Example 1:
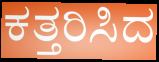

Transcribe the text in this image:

ಕತ್ತರಿಸಿದ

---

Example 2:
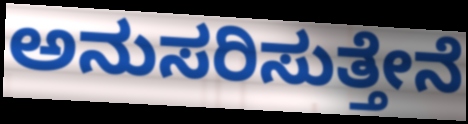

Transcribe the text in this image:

ಅನುಸರಿಸುತ್ತೇನೆ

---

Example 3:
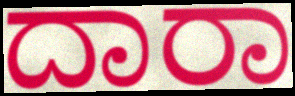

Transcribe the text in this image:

ದಾರಾ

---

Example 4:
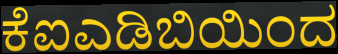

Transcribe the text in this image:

ಕೆಐಎಡಿಬಿಯಿಂದ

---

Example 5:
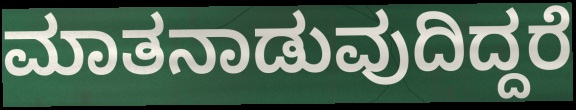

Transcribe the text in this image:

ಮಾತನಾಡುವುದಿದ್ದರೆ